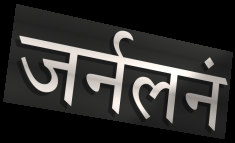
जर्नलनं